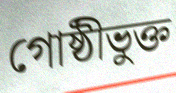
গোষ্ঠীভুক্ত